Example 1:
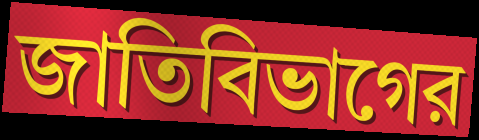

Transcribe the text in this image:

জাতিবিভাগের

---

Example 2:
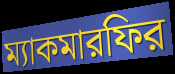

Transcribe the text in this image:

ম্যাকমারফির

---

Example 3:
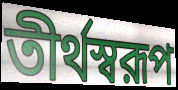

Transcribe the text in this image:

তীর্থস্বরূপ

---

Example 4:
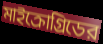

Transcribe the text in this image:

মাইক্রোগ্রিডের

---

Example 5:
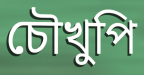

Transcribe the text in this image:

চৌখুপি